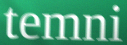
temni